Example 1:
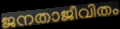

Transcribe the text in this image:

ജനതാജീവിതം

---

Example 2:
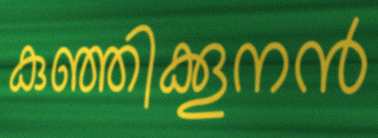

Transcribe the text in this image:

കുഞ്ഞിക്കൂനൻ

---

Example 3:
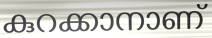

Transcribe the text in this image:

കുറക്കാനാണ്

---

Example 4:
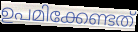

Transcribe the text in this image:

ഉപമിക്കേണ്ടത്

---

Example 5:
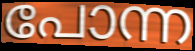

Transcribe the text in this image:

പോന്ന